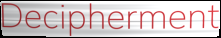
Decipherment